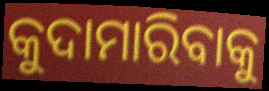
କୁଦାମାରିବାକୁ